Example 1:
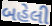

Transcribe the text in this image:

બહેલી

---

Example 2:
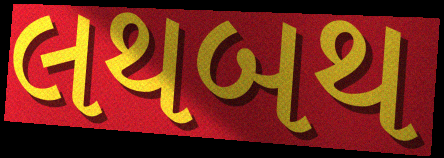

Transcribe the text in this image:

લથબથ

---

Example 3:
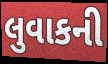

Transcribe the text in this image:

લુવાકની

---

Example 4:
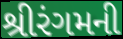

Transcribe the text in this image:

શ્રીરંગમની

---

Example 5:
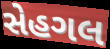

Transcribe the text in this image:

સેહગલ